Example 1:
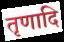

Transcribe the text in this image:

तृणादि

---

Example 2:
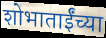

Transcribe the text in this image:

शोभाताईंच्या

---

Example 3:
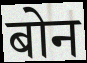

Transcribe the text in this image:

बोन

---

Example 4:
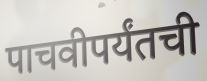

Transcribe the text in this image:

पाचवीपर्यंतची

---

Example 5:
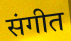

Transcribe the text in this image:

संगीत